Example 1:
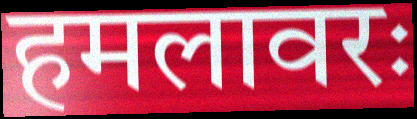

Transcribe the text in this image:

हमलावरः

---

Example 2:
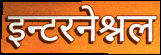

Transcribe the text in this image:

इन्टरनेश्नल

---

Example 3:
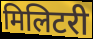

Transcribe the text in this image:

मिलिटरी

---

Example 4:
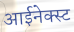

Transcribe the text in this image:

आईनेक्स्ट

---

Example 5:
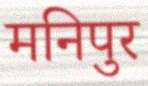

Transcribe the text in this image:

मनिपुर